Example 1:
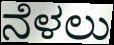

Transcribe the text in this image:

ನೆಳಲು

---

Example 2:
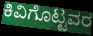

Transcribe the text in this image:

ಕಿವಿಗೊಟ್ಟವರ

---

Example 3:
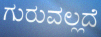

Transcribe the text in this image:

ಗುರುವಲ್ಲದೆ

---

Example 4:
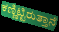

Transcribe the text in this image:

ಕಣ್ಣಿಟ್ಟಿರುತ್ತಾನೆ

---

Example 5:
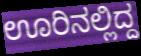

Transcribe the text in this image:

ಊರಿನಲ್ಲಿದ್ದ